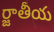
ర్జాతీయ